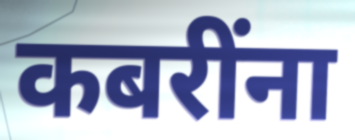
कबरींना